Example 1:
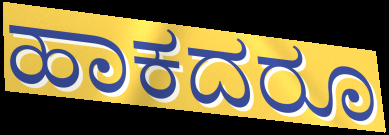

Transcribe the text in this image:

ಹಾಕದರೂ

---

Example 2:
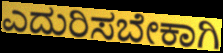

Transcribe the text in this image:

ಎದುರಿಸಬೇಕಾಗಿ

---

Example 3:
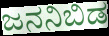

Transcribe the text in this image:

ಜನನಿಬಿಡ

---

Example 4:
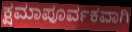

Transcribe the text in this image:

ಕ್ಷಮಾಪೂರ್ವಕವಾಗಿ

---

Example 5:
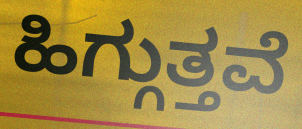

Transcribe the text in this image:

ಹಿಗ್ಗುತ್ತವೆ